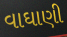
વાઘાણી